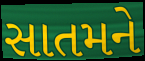
સાતમને